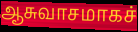
ஆசுவாசமாகச்